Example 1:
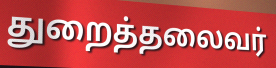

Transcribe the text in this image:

துறைத்தலைவர்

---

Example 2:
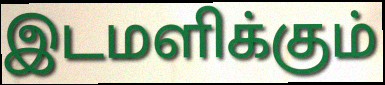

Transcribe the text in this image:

இடமளிக்கும்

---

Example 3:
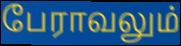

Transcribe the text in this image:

பேராவலும்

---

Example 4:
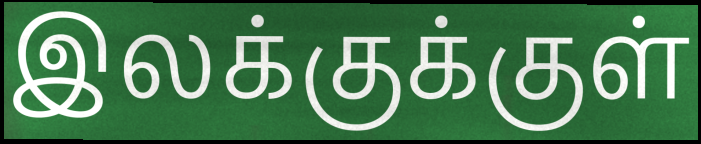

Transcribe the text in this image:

இலக்குக்குள்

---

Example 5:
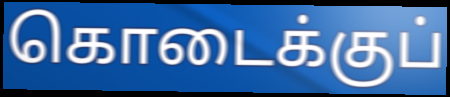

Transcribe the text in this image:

கொடைக்குப்